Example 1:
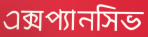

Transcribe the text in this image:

এক্সপ্যানসিভ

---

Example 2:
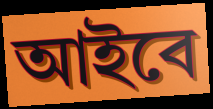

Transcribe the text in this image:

আইবে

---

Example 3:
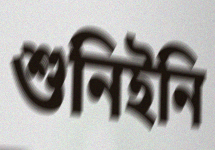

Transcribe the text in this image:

শুনিইনি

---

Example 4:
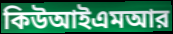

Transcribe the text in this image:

কিউআইএমআর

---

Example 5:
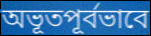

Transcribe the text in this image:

অভূতপূর্বভাবে